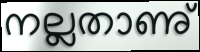
നല്ലതാണു്